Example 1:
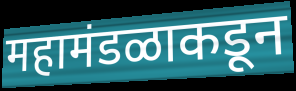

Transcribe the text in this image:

महामंडळाकडून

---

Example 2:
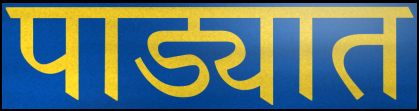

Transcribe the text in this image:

पाड्यात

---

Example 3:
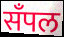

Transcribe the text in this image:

सँपल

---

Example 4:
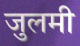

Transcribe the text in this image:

जुलमी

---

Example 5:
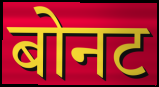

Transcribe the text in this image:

बोनट